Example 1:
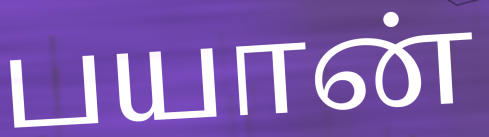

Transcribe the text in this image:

பயான்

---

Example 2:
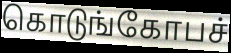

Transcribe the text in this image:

கொடுங்கோபச்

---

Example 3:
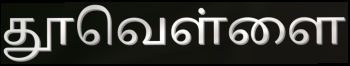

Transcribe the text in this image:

தூவெள்ளை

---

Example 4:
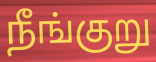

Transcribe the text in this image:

நீங்குறு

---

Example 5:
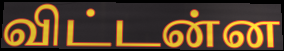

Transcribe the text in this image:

விட்டன்ன